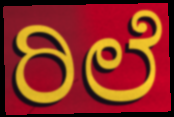
ರಿಲೆ